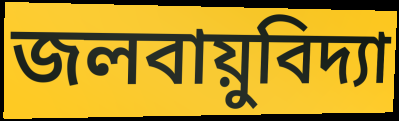
জলবায়ুবিদ্যা